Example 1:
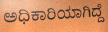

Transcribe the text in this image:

ಅಧಿಕಾರಿಯಾಗಿದ್ದೆ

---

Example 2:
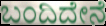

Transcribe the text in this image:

ಬಂದಿದೇನೆ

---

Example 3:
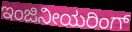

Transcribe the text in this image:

ಇಂಜಿನೀಯರಿಂಗ್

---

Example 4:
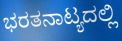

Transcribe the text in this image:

ಭರತನಾಟ್ಯದಲ್ಲಿ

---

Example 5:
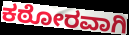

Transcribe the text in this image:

ಕಠೋರವಾಗಿ